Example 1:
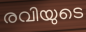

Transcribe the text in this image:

രവിയുടെ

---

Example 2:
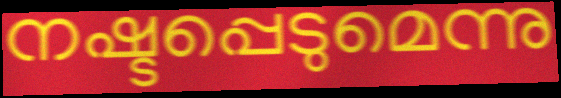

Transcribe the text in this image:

നഷ്ടപ്പെടുമെന്നു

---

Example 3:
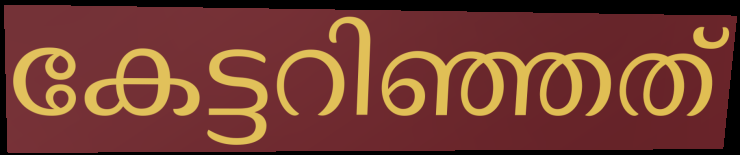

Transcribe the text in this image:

കേട്ടറിഞ്ഞത്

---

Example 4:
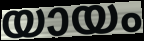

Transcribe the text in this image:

യായം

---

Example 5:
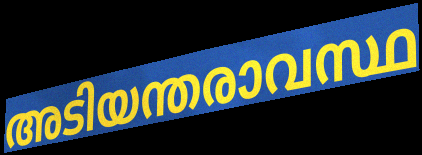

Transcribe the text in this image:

അടിയന്തരാവസ്ഥ